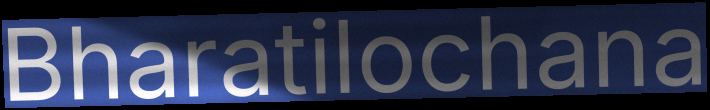
Bharatilochana